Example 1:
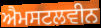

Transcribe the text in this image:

ਐਮਸਟਲਵੀਨ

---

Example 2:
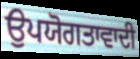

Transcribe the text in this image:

ਉਪਯੋਗਤਾਵਾਦੀ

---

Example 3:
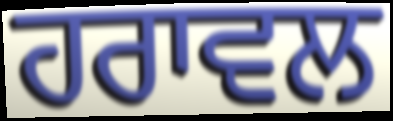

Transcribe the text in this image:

ਹਰਾਵਲ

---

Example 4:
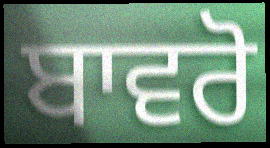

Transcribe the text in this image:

ਬਾਵਰੋ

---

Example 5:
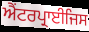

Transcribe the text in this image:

ਐਂਟਰਪ੍ਰਾਈਜਿਸ